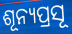
ଶୂନ୍ୟପ୍ରସୂ